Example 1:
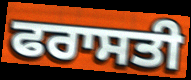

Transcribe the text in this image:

ਫਰਾਸਤੀ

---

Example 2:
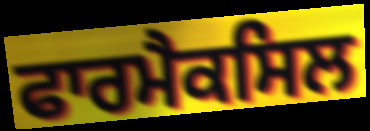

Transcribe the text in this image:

ਫਾਰਮੈਕਸਿਲ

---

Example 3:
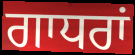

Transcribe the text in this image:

ਗਾਧਰਾਂ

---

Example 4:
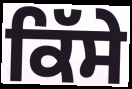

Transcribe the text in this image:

ਕਿੱਸੇ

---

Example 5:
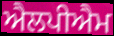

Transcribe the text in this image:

ਐਲਪੀਐਮ